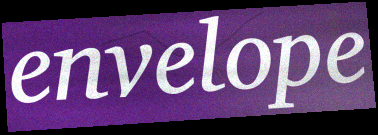
envelope